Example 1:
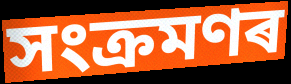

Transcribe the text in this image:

সংক্ৰমণৰ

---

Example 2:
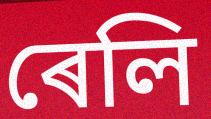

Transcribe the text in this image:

ৰেলি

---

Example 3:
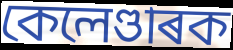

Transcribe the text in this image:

কেলেণ্ডাৰক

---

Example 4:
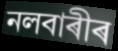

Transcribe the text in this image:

নলবাৰীৰ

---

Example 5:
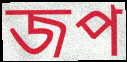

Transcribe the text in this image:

জপ